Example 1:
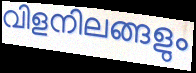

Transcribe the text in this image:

വിളനിലങ്ങളും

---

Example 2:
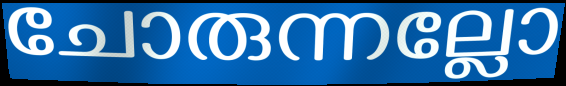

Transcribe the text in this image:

ചോരുന്നല്ലോ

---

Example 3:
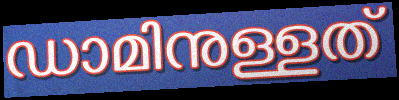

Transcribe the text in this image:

ഡാമിനുള്ളത്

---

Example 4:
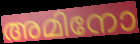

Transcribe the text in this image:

അമിനോ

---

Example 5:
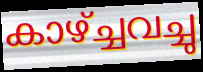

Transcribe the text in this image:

കാഴ്ച്ചവച്ചു